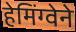
हेमिंग्वेने